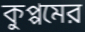
কুপ্পমের